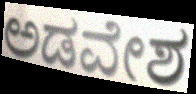
ಅಡವೇಶ